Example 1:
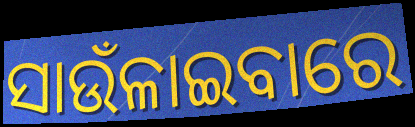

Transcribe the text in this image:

ସାଉଁଳାଇବାରେ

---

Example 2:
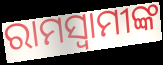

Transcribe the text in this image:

ରାମସ୍ୱାମୀଙ୍କ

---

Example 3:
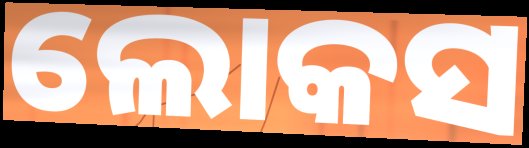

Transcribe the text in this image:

ଲୋକସ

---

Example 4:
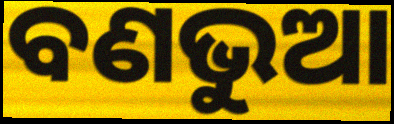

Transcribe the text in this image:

ବଣଭୁଆ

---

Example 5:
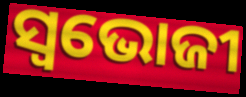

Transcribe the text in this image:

ସ୍ଵଭୋଜୀ